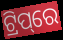
ଟ୍ରିପ୍‌ରେ